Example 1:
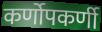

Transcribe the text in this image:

कर्णोपकर्णी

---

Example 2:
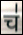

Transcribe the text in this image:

च॑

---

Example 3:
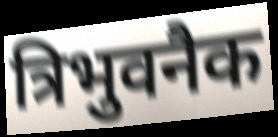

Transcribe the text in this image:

त्रिभुवनैक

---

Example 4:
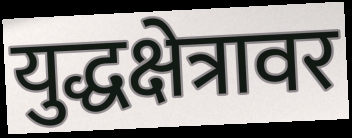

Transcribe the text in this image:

युद्धक्षेत्रावर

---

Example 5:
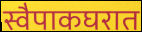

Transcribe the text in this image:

स्वैपाकघरात